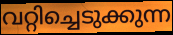
വറ്റിച്ചെടുക്കുന്ന